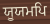
ਯੂਯਮਪਿ